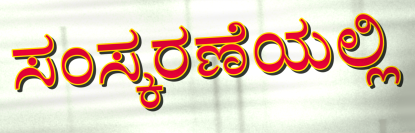
ಸಂಸ್ಕರಣೆಯಲ್ಲಿ